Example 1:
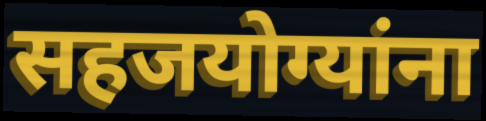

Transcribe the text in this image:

सहजयोग्यांना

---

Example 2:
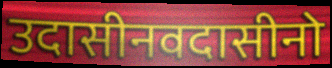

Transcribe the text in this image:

उदासीनवदासीनो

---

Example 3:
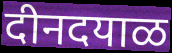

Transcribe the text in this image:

दीनदयाळ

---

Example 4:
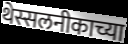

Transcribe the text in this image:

थेस्सलनीकाच्या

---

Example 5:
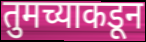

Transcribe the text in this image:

तुमच्याकडून